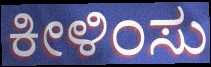
ಕೀಳಿಂಸು